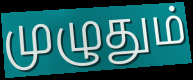
முழுதும்